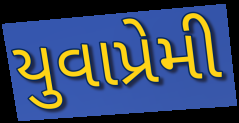
યુવાપ્રેમી